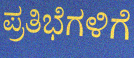
ಪ್ರತಿಭೆಗಳಿಗೆ